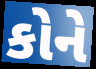
કોને